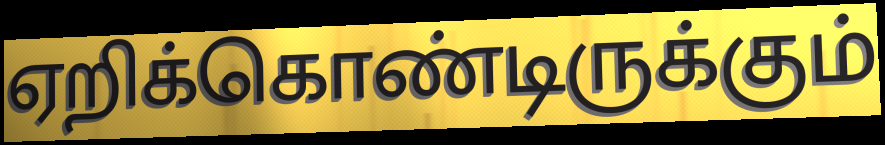
ஏறிக்கொண்டிருக்கும்